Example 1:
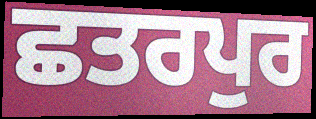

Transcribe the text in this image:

ਛਤਰਪੁਰ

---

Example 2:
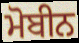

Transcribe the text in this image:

ਮੋਬੀਨ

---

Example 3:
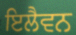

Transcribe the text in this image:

ਇਲੈਵਨ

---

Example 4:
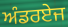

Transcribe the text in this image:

ਅੰਡਰਏਜ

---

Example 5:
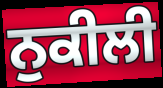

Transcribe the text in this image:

ਨੁਕੀਲੀ